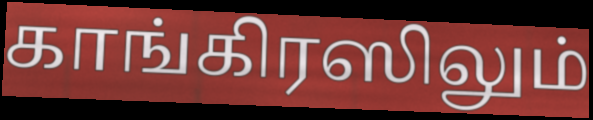
காங்கிரஸிலும்